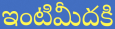
ఇంటిమీదకి